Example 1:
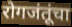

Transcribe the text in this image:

रोगजंतूंचा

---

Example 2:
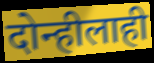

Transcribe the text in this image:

दोन्हीलाही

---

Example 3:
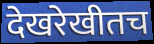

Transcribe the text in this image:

देखरेखीतच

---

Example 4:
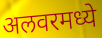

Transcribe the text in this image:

अलवरमध्ये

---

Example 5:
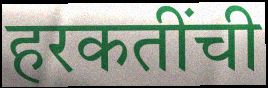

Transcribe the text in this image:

हरकतींची